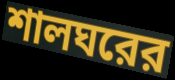
শালঘরের